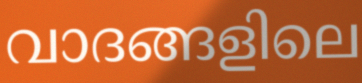
വാദങ്ങളിലെ